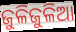
ଜୁଳିଜୁଳିଆ